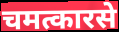
चमत्कारसे